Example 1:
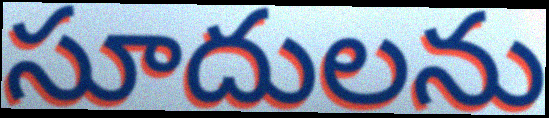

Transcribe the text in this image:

సూదులను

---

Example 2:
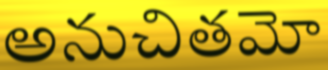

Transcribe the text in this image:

అనుచితమో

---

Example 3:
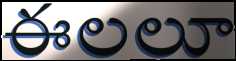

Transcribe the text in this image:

ఈలలూ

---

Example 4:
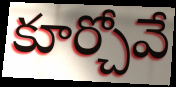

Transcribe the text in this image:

కూర్చోవే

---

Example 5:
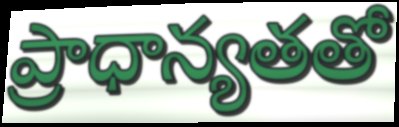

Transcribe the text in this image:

ప్రాధాన్యతతో